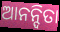
ଆନନ୍ଦିତା